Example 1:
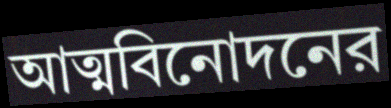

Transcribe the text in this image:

আত্মবিনোদনের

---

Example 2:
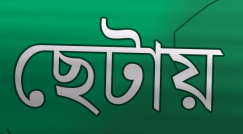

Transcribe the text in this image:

ছেটায়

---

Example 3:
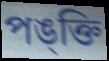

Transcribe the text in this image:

পঙ্‌ক্তি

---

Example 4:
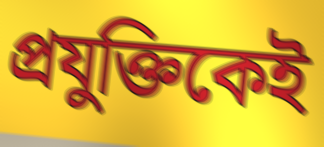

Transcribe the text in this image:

প্রযুক্তিকেই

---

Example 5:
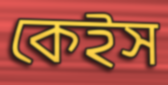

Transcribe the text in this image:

কেইস